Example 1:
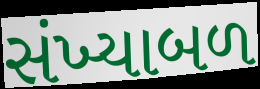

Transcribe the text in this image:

સંખ્યાબળ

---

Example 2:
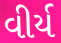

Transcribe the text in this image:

વીર્ય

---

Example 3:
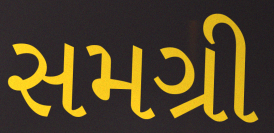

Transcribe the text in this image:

સમગ્રી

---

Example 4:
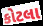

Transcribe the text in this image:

કોટલા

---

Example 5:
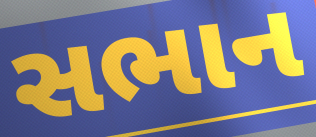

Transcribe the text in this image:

સભાન